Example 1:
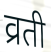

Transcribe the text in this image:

व्रती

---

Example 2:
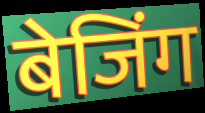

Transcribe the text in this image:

बेजिंग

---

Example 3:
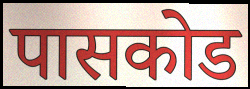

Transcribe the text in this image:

पासकोड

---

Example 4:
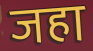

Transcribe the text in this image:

जहा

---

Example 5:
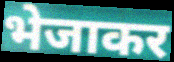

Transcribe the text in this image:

भेजाकर